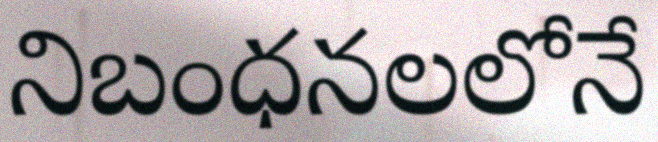
నిబంధనలలోనే